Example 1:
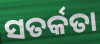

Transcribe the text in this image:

ସତର୍କତା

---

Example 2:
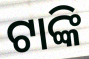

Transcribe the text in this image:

ଟାଙ୍କି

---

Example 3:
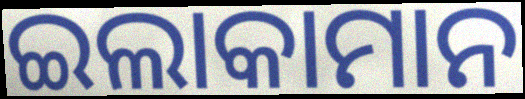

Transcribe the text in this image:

ଇଲାକାମାନ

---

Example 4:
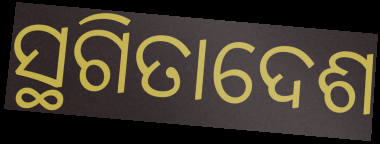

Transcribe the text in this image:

ସ୍ଥଗିତାଦେଶ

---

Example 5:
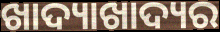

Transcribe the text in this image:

ଖାଦ୍ୟାଖାଦ୍ୟର